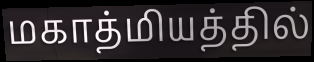
மகாத்மியத்தில்